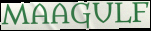
MAAGULF